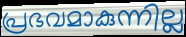
പ്രഭവമാകുന്നില്ല